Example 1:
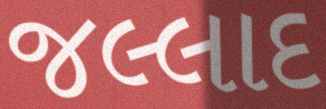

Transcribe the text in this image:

જલ્લાદ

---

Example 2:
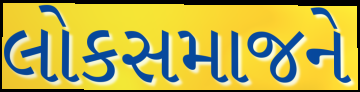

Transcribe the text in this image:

લોકસમાજને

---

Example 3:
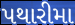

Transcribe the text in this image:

પથારીમા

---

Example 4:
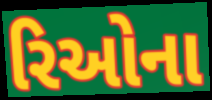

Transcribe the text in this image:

રિઓના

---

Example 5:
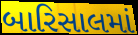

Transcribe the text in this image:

બારિસાલમાં